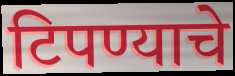
टिपण्याचे